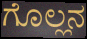
ಗೊಲ್ಲನ